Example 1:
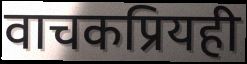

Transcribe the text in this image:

वाचकप्रियही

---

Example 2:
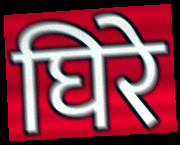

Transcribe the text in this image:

घिरे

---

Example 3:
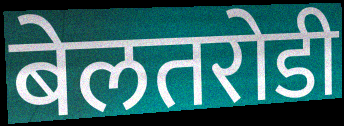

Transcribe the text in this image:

बेलतरोडी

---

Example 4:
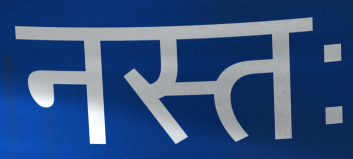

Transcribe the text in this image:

नस्तः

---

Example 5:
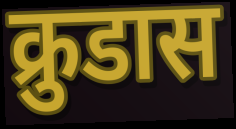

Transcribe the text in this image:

क्रुडास